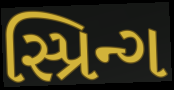
સ્પ્રિન્ગ